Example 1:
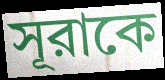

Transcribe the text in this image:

সূরাকে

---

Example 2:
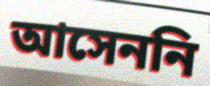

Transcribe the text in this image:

আসেননি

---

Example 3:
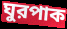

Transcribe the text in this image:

ঘুরপাক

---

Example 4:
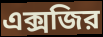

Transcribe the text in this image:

এক্সজির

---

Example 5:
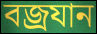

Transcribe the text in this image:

বজ্রযান